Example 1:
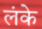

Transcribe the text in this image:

लंके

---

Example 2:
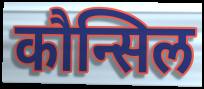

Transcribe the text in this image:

कौन्सिल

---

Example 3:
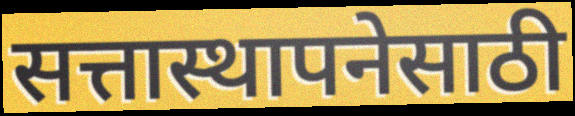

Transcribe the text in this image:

सत्तास्थापनेसाठी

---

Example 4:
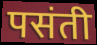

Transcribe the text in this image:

पसंती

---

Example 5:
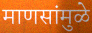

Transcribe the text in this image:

माणसांमुळे